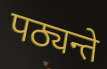
पठ्यन्ते